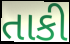
તાકી